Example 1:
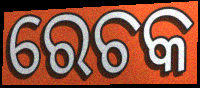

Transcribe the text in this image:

ରେଚକ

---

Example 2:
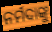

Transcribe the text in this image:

ନର୍ମଦାଙ୍କୁ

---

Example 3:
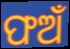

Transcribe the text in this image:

ଫଅଁ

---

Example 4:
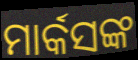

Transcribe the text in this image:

ମାର୍କସଙ୍କ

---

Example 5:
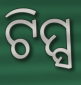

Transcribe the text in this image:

ଟିପ୍ସ